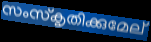
സംസ്കൃതിക്കുമേല്